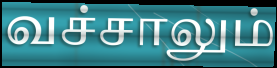
வச்சாலும்